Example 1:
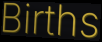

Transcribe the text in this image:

Births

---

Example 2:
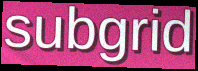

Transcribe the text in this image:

subgrid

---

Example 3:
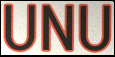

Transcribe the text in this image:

UNU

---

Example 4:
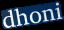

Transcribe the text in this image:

dhoni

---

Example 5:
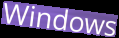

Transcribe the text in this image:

Windows